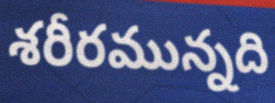
శరీరమున్నది